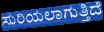
ಸುರಿಯಲಾಗುತ್ತಿದೆ